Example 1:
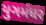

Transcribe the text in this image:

યુગમંધર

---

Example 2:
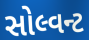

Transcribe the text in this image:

સોલ્વન્ટ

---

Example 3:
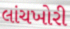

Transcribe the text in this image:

લાંચખોરી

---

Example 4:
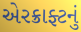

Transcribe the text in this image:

એરક્રાફ્ટનું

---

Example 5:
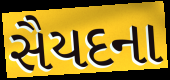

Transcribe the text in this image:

સૈયદના